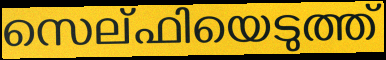
സെല്ഫിയെടുത്ത്